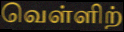
வெள்ளிற்